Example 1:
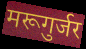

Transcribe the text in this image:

मरूगुर्जर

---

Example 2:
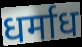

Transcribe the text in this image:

धर्माध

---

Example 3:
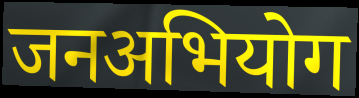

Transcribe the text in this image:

जनअभियोग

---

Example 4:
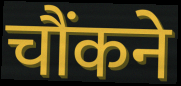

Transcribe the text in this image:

चौंकने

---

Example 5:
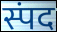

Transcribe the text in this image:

स्पंद